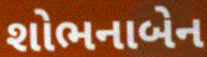
શોભનાબેન